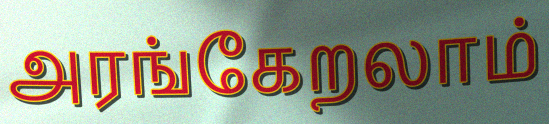
அரங்கேறலாம்